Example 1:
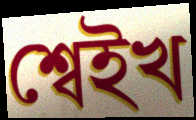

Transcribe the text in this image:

শ্বেইখ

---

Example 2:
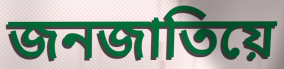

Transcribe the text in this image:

জনজাতিয়ে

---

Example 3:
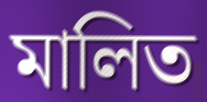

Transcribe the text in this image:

মালিত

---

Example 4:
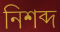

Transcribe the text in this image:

নিশব্দ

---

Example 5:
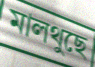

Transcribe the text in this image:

মালথুছে